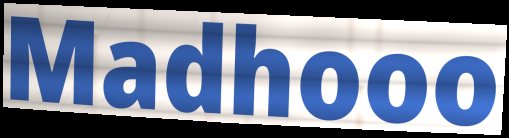
Madhooo